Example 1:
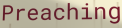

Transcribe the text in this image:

Preaching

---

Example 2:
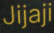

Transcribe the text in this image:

Jijaji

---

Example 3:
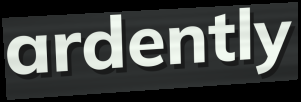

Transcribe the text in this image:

ardently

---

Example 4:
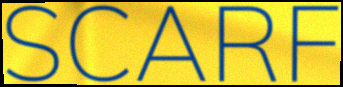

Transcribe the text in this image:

SCARF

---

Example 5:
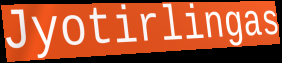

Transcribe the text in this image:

Jyotirlingas